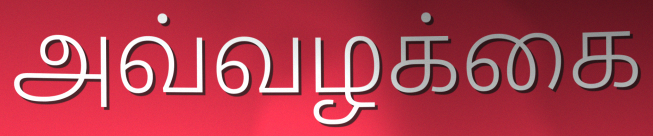
அவ்வழக்கை